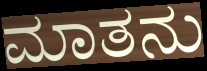
ಮಾತನು